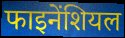
फाइनेंशियल